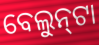
ବେଲୁନ୍‌ଟା